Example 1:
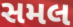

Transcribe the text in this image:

સમલ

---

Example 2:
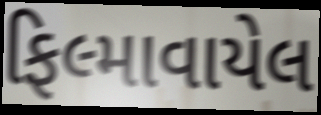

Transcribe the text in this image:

ફિલ્માવાયેલ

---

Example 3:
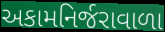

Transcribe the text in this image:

અકામનિર્જરાવાળા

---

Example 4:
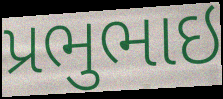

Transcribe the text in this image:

પ્રભુભાઇ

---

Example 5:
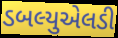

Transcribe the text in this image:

ડબલ્યુએલડી